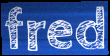
fred